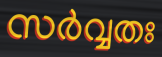
സർവ്വതഃ